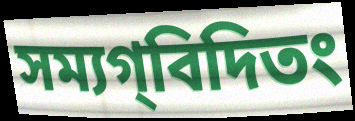
সম্যগ্‌বিদিতং